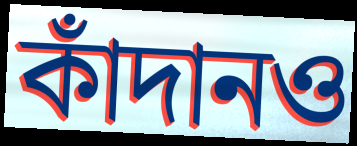
কাঁদানও